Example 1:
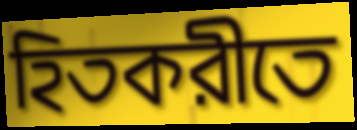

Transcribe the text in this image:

হিতকরীতে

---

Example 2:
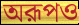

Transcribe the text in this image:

অরূপও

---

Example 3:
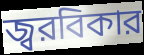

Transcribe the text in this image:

জ্বরবিকার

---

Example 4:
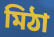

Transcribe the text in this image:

মিঠা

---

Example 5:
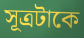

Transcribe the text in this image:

সূত্রটাকে